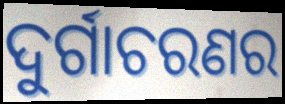
ଦୁର୍ଗାଚରଣର